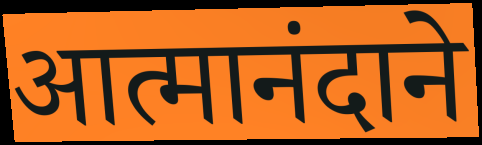
आत्मानंदाने